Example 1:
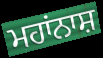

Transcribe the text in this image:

ਮਹਾਂਨਾਸ਼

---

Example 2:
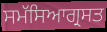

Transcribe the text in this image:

ਸਮੱਸਿਆਗ੍ਰਸਤ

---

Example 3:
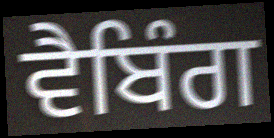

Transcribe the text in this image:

ਵੈਬਿੰਗ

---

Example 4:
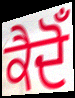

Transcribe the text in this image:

ਕੈਦੋਁ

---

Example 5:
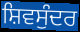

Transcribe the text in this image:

ਸ਼ਿਵਸੁੰਦਰ